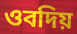
ওবদিয়